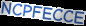
NCPFECCE